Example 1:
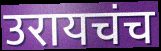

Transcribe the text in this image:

उरायचंच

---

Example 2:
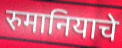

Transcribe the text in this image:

रुमानियाचे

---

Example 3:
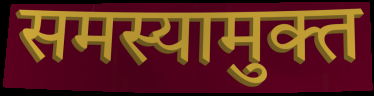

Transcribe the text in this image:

समस्यामुक्त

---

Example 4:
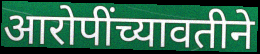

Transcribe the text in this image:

आरोपींच्यावतीने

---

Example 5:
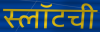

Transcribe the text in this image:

स्लॉटची